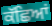
ਕੱਛਿਆਂ